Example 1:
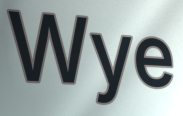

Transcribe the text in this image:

Wye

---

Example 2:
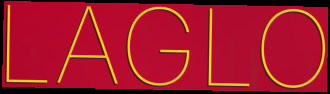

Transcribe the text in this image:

LAGLO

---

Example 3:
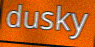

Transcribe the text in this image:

dusky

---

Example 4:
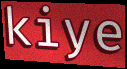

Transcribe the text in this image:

kiye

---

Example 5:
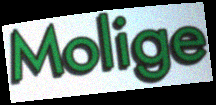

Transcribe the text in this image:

Molige